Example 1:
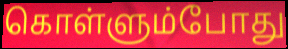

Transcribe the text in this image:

கொள்ளும்போது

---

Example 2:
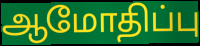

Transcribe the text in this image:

ஆமோதிப்பு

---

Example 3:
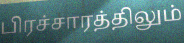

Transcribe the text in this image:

பிரச்சாரத்திலும்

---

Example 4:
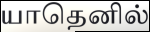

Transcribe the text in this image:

யாதெனில்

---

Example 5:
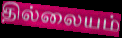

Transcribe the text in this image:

தில்லையம்